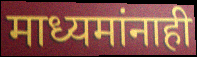
माध्यमांनाही